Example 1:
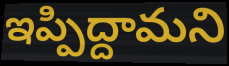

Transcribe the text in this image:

ఇప్పిద్దామని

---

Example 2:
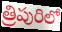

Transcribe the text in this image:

త్రిపురిలో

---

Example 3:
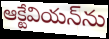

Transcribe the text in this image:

ఆక్టేవియన్‌ను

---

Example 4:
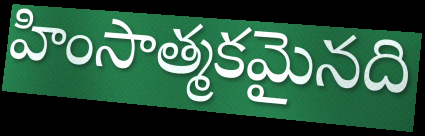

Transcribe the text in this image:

హింసాత్మకమైనది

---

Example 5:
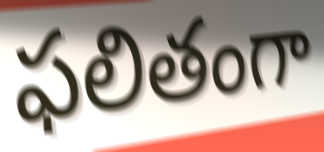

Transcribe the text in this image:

ఫలితంగా